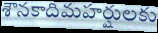
శౌనకాదిమహర్షులకు